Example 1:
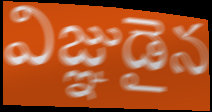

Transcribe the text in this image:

విజ్ఞుడైన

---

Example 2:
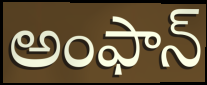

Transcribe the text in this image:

అంఫాన్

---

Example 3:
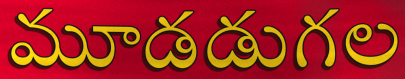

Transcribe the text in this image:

మూడడుగల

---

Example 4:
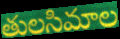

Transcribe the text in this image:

తులసిమాల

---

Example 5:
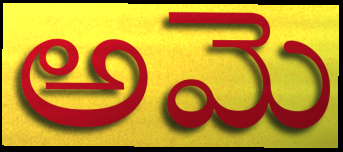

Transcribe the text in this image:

అమె